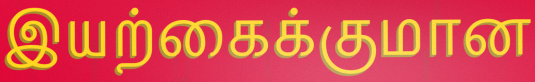
இயற்கைக்குமான